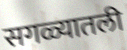
सगळ्यातली